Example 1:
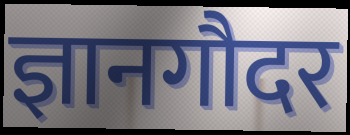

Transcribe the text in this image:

ज्ञानगौदर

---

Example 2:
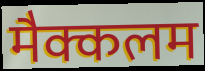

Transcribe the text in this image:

मैक्कलम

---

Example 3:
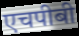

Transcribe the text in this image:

एचपीबी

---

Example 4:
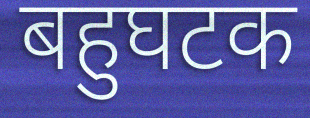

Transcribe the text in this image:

बहुघटक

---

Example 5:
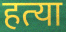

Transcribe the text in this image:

हत्‍या